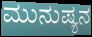
ಮುನುಷ್ಯನ